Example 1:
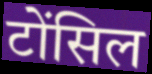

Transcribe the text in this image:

टोंसिल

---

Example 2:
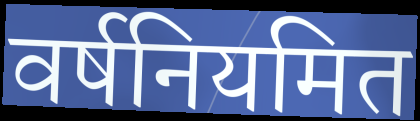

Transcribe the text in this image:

वर्षनियमित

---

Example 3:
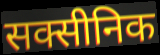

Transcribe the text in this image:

सक्सीनिक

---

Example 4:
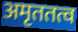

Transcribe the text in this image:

अमृततत्व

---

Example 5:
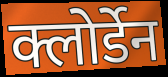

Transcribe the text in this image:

क्लोर्डेन